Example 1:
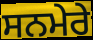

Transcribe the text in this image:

ਸਨਮੇਰੇ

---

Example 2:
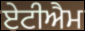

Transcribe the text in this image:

ਏਟੀਐਮ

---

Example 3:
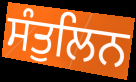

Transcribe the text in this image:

ਸੰਤੁਲਿਨ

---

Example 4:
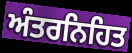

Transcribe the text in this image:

ਅੰਤਰਨਿਹਿਤ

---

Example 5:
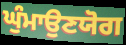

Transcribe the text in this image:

ਘੁੰਮਾਉਣਯੋਗ